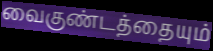
வைகுண்டத்தையும்